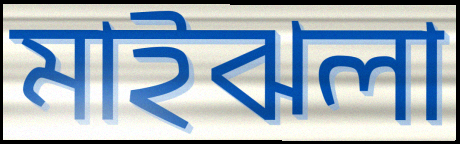
মাইঝলা